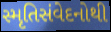
સ્મૃતિસંવેદનોથી